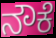
ನೌಕೆ